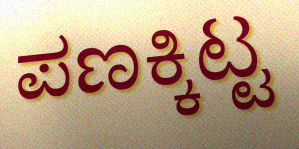
ಪಣಕ್ಕಿಟ್ಟ